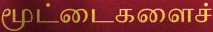
மூட்டைகளைச்